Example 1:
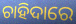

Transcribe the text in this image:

ଚାହିଦାରେ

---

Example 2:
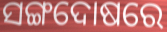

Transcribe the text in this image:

ସଙ୍ଗଦୋଷରେ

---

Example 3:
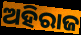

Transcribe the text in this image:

ଅହିରାଜ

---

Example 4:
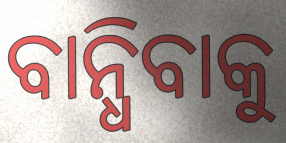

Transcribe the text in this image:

ବାନ୍ଧିବାକୁ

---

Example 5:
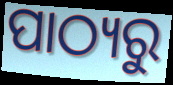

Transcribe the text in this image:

ପାଠ୍ୟରୁ